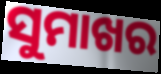
ସୁମାଖର